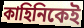
কাহিনিকেই